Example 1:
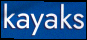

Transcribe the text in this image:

kayaks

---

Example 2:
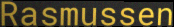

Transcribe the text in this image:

Rasmussen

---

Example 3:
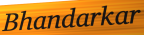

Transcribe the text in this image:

Bhandarkar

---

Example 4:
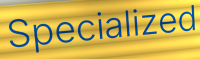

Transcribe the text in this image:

Specialized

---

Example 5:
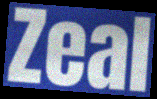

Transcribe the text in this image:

Zeal